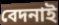
বেদনাই